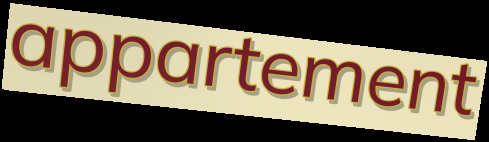
appartement